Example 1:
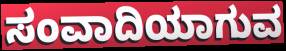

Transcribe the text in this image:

ಸಂವಾದಿಯಾಗುವ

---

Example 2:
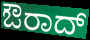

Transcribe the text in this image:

ಔರಾದ್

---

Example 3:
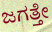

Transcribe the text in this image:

ಜಗತ್ತೇ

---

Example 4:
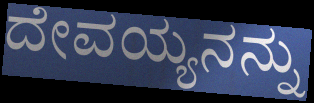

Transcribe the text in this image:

ದೇವಯ್ಯನನ್ನು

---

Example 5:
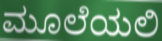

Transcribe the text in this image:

ಮೂಲೆಯಲಿ